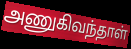
அணுகிவந்தாள்